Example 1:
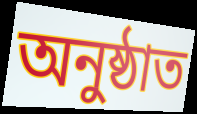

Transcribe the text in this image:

অনুষ্ঠাত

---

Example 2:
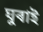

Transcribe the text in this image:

ঘুৰাই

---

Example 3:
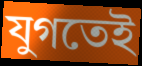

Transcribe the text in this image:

যুগতেই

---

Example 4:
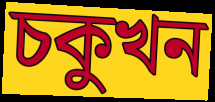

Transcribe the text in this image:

চকুখন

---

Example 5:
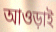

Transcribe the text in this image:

আওড়াই